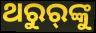
ଥରୁର୍‌ଙ୍କୁ